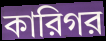
কারিগর